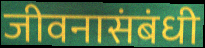
जीवनासंबंधी